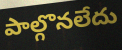
పాల్గొనలేదు